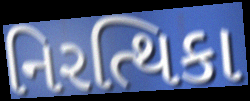
નિરત્થિકા